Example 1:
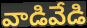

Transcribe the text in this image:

వాడివేడి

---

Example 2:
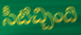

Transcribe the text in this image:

సీటిచ్చింది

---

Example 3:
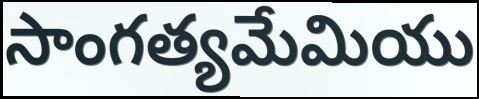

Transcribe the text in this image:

సాంగత్యమేమియు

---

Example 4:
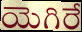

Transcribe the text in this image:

యెగిరే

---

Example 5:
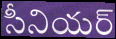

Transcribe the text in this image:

సీనియర్